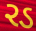
રડ